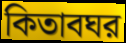
কিতাবঘর